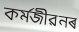
কৰ্মজীৱনৰ